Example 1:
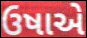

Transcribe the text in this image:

ઉષાએ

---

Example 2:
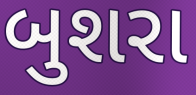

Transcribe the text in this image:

બુશરા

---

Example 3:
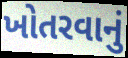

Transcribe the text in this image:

ખોતરવાનું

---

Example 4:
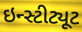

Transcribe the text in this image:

ઇન્સ્ટીટ્યૂટ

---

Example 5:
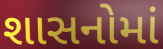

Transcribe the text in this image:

શાસનોમાં